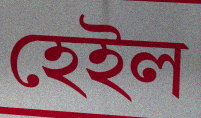
হেইল